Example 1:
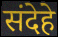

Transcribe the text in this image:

संदेहे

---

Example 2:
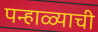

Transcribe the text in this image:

पन्हाळ्याची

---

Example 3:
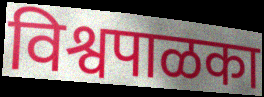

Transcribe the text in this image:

विश्वपाळका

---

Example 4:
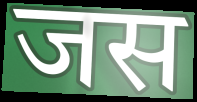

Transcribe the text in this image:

जस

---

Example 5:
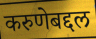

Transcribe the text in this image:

करुणेबद्दल